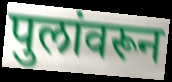
पुलांवरून